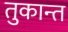
तुकान्त